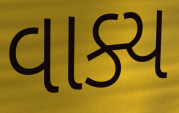
વાક્ય